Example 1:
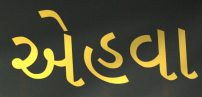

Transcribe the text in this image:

એહવા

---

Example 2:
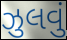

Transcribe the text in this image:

ઝુલવું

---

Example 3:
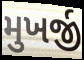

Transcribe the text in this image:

મુખર્જી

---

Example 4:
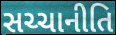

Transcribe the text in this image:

સચ્ચાનીતિ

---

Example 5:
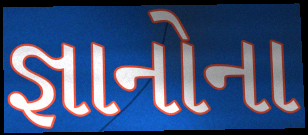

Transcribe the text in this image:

જ્ઞાનોના